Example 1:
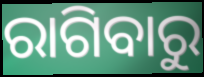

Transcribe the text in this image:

ରାଗିବାରୁ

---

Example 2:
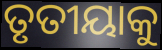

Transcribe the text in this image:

ତୃତୀୟାକୁ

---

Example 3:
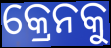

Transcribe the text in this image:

କ୍ରେନକୁ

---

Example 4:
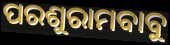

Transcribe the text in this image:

ପରଶୁରାମବାବୁ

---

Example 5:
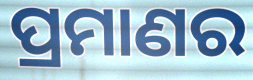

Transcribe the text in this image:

ପ୍ରମାଣର